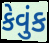
કેવુંક